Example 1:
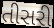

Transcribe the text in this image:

તીસરી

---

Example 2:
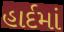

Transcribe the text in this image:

હાર્દમાં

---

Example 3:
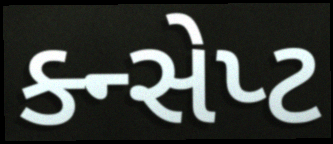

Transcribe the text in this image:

ક્ન્સેપ્ટ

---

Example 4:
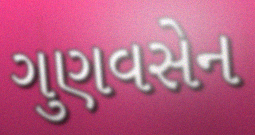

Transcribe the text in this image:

ગુણવસેન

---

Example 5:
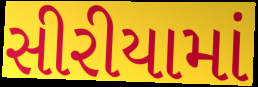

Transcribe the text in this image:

સીરીયામાં